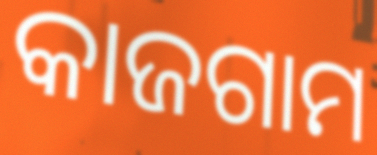
କାଜଗାମ